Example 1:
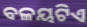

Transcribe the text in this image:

ବଳୟଟିଏ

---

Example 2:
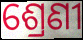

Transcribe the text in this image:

ଶ୍ରେଣୀ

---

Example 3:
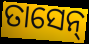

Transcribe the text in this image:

ତାସେନ୍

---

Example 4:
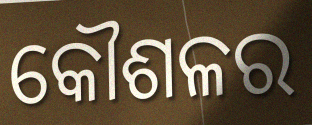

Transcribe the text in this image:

କୌଶଳର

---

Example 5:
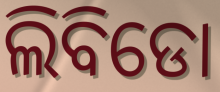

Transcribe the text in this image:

ଲିବିଡୋ